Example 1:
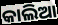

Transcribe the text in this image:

କାଲିଆ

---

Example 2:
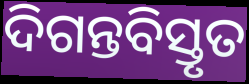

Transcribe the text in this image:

ଦିଗନ୍ତବିସ୍ତୃତ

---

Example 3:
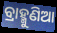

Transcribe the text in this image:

ବ୍ରାହ୍ମୁଣିଆ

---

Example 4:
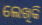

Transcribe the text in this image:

ଲେଖିକି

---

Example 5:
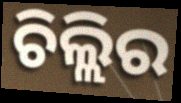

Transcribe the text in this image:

ଚିଲ୍ଲିର